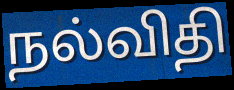
நல்விதி